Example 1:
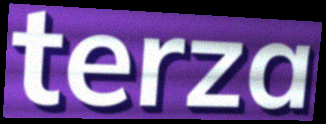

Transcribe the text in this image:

terza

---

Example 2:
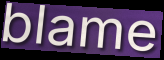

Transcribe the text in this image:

blame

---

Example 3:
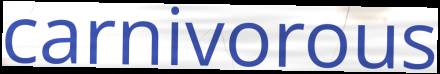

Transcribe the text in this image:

carnivorous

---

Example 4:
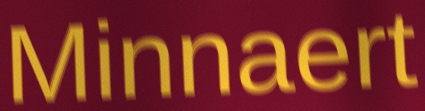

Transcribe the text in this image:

Minnaert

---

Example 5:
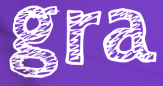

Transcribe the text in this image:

gra